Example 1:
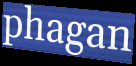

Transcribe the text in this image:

phagan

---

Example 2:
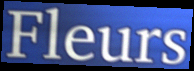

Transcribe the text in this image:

Fleurs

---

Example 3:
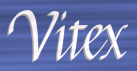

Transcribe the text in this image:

Vitex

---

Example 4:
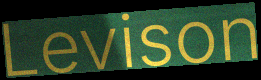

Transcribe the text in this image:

Levison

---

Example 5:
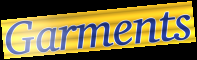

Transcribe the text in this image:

Garments